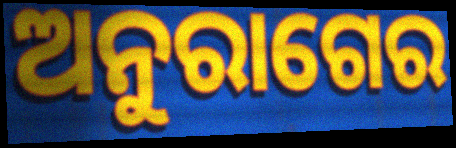
ଅନୁରାଗେର